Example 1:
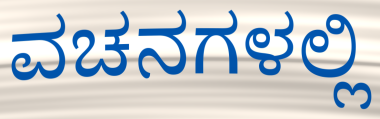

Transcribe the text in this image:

ವಚನಗಳಲ್ಲಿ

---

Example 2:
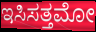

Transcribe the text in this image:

ಇಸಿಸತ್ತಮೋ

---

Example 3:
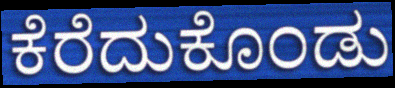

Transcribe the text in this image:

ಕೆರೆದುಕೊಂಡು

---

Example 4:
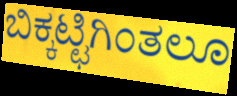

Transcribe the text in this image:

ಬಿಕ್ಕಟ್ಟಿಗಿಂತಲೂ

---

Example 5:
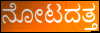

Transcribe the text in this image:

ನೋಟದತ್ತ